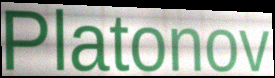
Platonov